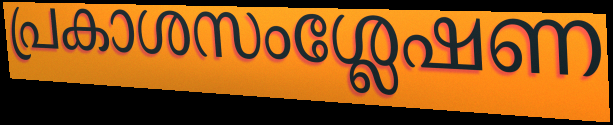
പ്രകാശസംശ്ലേഷണ